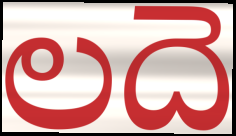
లదె